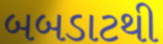
બબડાટથી